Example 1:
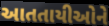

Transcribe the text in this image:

આતતાયીઓને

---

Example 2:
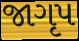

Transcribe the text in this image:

જાગૃપ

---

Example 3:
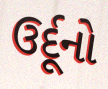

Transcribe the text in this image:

ઉર્દૂનો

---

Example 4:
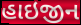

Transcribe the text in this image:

હાઇજીન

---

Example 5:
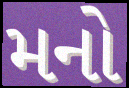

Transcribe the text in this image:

મનો